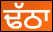
ਢੱਠਾ